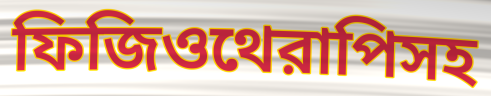
ফিজিওথেরাপিসহ